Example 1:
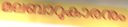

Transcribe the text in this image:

മലബാറുകാരനും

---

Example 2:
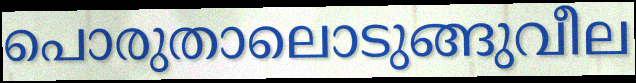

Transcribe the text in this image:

പൊരുതാലൊടുങ്ങുവീല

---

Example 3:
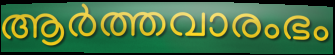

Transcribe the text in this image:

ആർത്തവാരംഭം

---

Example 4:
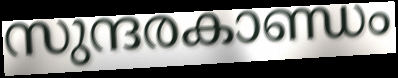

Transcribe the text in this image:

സുന്ദരകാണ്ഡം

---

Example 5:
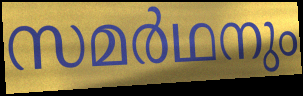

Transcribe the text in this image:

സമർഥനും